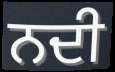
ਨਦੀ